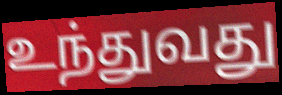
உந்துவது